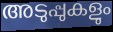
അടുപ്പുകളും